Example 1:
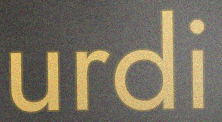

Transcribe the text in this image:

urdi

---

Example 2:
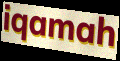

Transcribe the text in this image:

iqamah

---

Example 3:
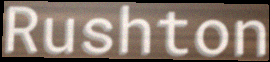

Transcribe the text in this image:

Rushton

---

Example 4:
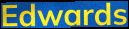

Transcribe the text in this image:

Edwards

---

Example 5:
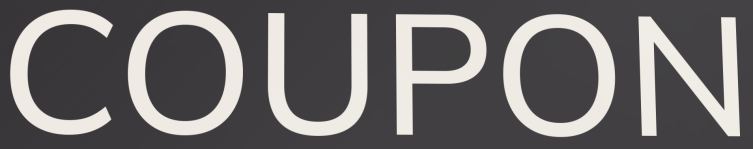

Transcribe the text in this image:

COUPON